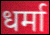
धर्मा